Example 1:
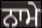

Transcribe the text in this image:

ਨਾਮੇ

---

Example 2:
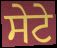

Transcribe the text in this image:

ਸੇਟੇ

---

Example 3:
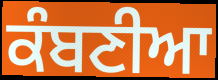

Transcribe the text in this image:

ਕੰਬਣੀਆ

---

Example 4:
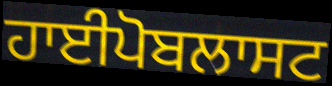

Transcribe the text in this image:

ਹਾਈਪੋਬਲਾਸਟ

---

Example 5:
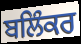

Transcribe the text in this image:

ਬਲਿੰਕਰ